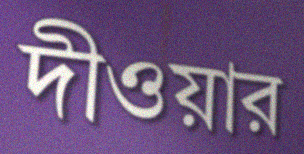
দীওয়ার